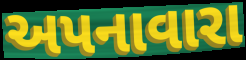
અપનાવારા